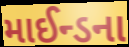
માઈન્ડના